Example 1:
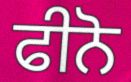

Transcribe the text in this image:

ਫੀਨੋ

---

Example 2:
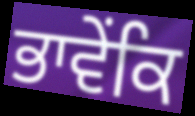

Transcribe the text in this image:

ਭਾਵੇਂਕਿ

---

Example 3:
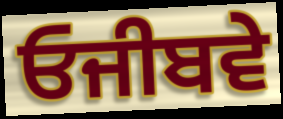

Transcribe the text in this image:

ਓਜੀਬਵੇ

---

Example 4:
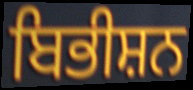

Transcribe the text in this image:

ਬਿਭੀਸ਼ਨ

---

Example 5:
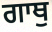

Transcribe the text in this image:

ਗਾਥੁ